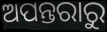
ଅପନ୍ତରାରୁ